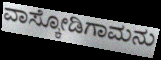
ವಾಸ್ಕೋಡಿಗಾಮನು